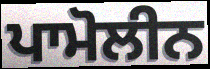
ਪਾਮੋਲੀਨ